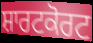
ਸ਼ਾਰਟਕੋਰਟ